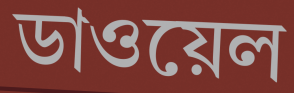
ডাওয়েল